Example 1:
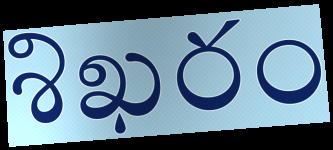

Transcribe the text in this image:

శిఖరం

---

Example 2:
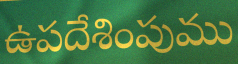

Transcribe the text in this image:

ఉపదేశింపుము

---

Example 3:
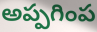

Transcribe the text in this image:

అప్పగింప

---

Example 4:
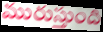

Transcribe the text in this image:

మురుస్తుంది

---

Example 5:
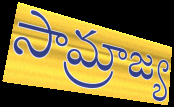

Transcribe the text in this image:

సామ్రాజ్య